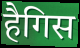
हैगिस